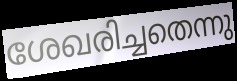
ശേഖരിച്ചതെന്നു